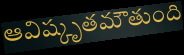
ఆవిష్కృతమౌతుంది